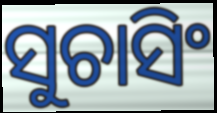
ସୁଚାସିଂ